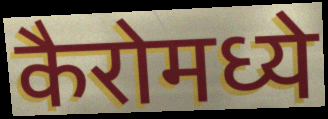
कैरोमध्ये